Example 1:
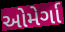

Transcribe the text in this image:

ઓમેર્ગા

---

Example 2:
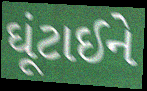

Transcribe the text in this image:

ઘૂંટાઈને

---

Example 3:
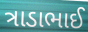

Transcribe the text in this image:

ત્રાડાભાઈ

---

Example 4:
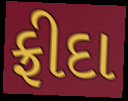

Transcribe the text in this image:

ફ્રીદા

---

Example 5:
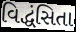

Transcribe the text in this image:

વિદ્ધંસિતા